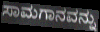
ಸಾಮಗಾನವನ್ನು